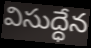
విసుద్ధేన